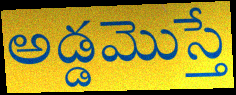
అడ్డమొస్తే